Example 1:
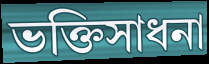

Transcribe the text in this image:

ভক্তিসাধনা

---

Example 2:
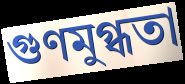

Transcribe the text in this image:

গুণমুগ্ধতা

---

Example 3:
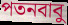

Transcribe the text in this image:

পতনবাবু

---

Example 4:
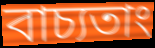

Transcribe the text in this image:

বাচ্যতাং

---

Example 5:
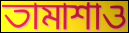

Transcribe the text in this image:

তামাশাও